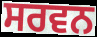
ਸਰਵਨ